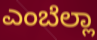
ಎಂಬೆಲ್ಲಾ